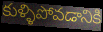
కుళ్ళిపోవడానికి